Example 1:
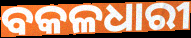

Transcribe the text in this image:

ବକଳଧାରୀ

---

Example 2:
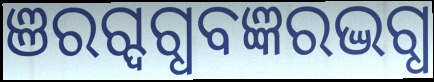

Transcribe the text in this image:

ଞରଗ୍ଦଗ୍ଧବଜ୍ଞରଦ୍ଭଗ୍ଧ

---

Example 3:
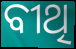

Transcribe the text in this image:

ବୀଥି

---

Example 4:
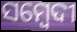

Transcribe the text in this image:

ସମ୍ବେଦୀ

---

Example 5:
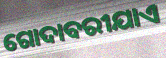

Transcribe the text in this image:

ଗୋଦାବରୀଯାଏ